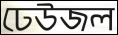
ঢেউজল